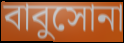
বাবুসোনা